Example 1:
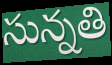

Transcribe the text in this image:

సున్నతి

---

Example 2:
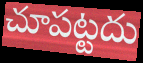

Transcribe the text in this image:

చూపట్టదు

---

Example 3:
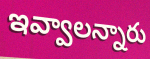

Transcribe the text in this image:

ఇవ్వాలన్నారు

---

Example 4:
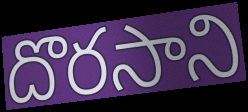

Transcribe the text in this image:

దొరసాని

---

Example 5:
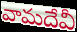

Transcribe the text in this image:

వామదేవీ